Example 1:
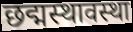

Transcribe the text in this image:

छद्मस्थावस्था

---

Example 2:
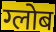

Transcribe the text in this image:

ग्लोब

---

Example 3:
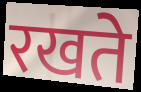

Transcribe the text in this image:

रखते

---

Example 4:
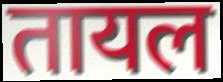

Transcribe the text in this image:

तायल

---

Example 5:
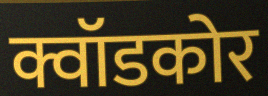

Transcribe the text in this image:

क्वॉडकोर